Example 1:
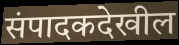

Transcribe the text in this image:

संपादकदेखील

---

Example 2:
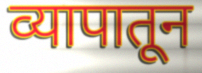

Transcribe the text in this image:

व्यापातून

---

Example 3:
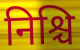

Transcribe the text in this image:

निश्चि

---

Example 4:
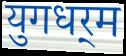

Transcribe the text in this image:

युगधर्म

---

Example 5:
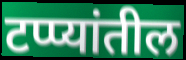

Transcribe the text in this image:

टप्प्यांतील